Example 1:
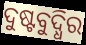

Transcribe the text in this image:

ଦୁଷ୍ଟବୁଦ୍ଧିର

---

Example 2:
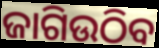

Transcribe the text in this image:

ଜାଗିଉଠିବ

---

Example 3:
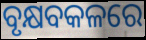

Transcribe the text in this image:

ବୃକ୍ଷବକଳରେ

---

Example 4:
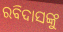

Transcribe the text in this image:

ରବିଦାସଙ୍କୁ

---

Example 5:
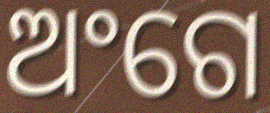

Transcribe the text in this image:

ଅଂଗେ